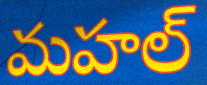
మహల్